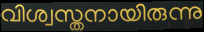
വിശ്വസ്തനായിരുന്നു